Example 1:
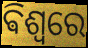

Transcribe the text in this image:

ଵିଶ୍ଵରେ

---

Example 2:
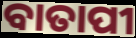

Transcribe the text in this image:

ବାତାପୀ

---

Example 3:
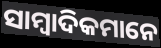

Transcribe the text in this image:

ସାମ୍ବାଦିକମାନେ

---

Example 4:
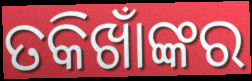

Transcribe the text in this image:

ତକିଖାଁଙ୍କର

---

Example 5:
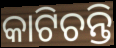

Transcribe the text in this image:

କାଟିଚନ୍ତି